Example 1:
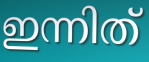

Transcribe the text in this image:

ഇന്നിത്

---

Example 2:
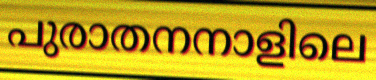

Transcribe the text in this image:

പുരാതനനാളിലെ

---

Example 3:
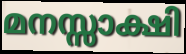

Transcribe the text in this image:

മനസ്സാക്ഷി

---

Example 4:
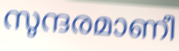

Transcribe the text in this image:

സുന്ദരമാണീ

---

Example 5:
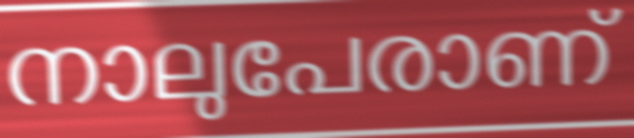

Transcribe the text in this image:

നാലുപേരാണ്